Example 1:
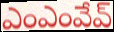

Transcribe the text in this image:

ఎంఎంవేవ్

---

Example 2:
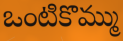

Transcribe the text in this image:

ఒంటికొమ్ము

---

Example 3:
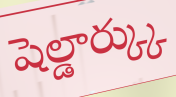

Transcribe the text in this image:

షెల్డార్క్కు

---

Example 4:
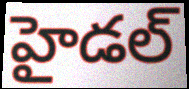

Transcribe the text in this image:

హైడల్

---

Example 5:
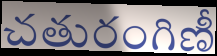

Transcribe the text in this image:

చతురంగిణీ